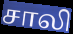
சாலி